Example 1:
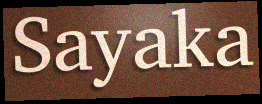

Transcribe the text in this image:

Sayaka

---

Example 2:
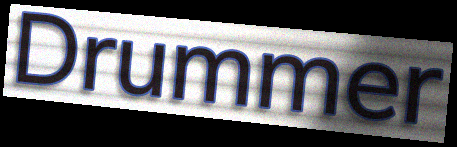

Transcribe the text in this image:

Drummer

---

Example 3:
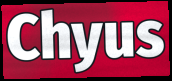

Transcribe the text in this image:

Chyus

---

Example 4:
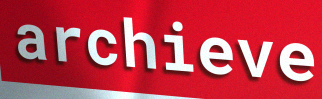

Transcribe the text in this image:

archieve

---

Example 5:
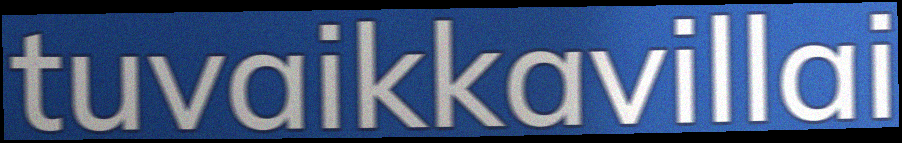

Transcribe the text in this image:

tuvaikkavillai